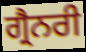
ਗ੍ਰੈਨਰੀ